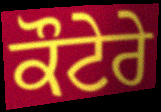
ਕੌਟੇਰੇ